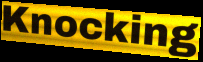
Knocking